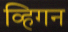
व्हिगन